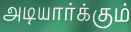
அடியார்க்கும்